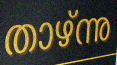
താഴ്ന്നു